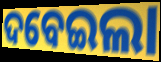
ଦବେଇଲା